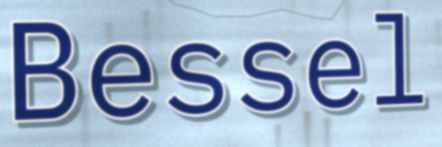
Bessel